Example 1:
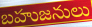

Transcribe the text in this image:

బహుజనులు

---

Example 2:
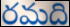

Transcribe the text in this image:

రమది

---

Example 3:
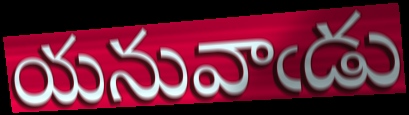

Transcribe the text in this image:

యనువాఁడు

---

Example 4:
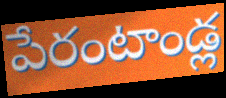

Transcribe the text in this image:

పేరంటాండ్ల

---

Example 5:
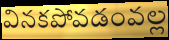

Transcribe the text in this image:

వినకపోవడంవల్ల